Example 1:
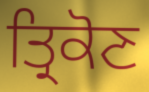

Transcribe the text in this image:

ਤ੍ਰਿਕੋਣ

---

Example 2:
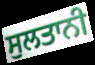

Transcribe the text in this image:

ਸੁਲਤਾਨੀ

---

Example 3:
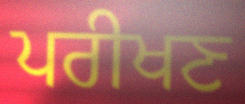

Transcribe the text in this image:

ਪਰੀਖਣ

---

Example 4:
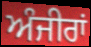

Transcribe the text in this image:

ਅੰਜੀਰਾਂ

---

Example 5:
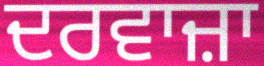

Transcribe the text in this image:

ਦਰਵਾਜ਼ਾ